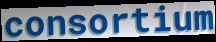
consortium